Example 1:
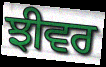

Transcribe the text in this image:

ਝੀਵਰ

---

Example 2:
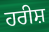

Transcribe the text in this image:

ਹਰੀਸ਼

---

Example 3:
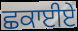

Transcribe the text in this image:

ਛਕਾਈਏ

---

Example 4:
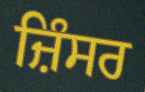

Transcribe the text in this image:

ਜ਼ਿੰਸਰ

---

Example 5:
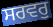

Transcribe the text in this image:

ਸਰਵਰੁ